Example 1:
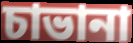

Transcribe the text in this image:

চাভানা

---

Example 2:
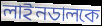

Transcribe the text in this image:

লাইনডালকে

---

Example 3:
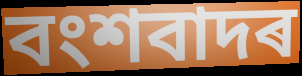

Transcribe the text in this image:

বংশবাদৰ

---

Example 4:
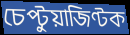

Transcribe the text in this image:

চেপ্টুয়াজিণ্টক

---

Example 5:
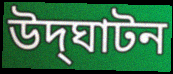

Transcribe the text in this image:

উদ্‌ঘাটন